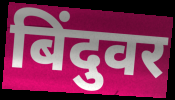
बिंदुवर